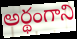
అర్థంగాని